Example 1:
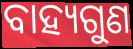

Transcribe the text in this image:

ବାହ୍ୟଗୁଣ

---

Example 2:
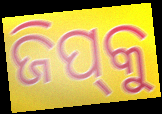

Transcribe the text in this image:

ଜିପ୍‌କୁ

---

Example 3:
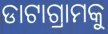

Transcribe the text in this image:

ଡାଟାଗ୍ରାମକୁ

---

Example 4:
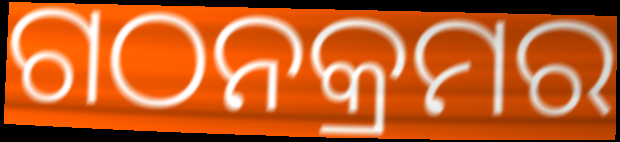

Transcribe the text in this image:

ଗଠନକ୍ରମର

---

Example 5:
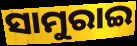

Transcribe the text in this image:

ସାମୁରାଇ